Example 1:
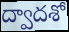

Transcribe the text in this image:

ద్వాదశో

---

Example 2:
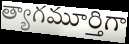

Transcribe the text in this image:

త్యాగమూర్తిగా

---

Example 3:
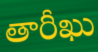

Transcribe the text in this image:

తారీఖు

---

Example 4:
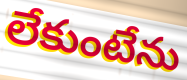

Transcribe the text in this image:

లేకుంటేను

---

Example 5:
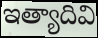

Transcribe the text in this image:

ఇత్యాదివి